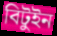
বিটুইন